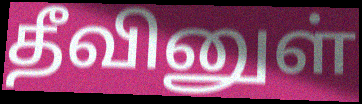
தீவினுள்